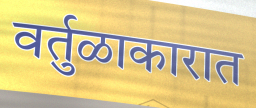
वर्तुळाकारात